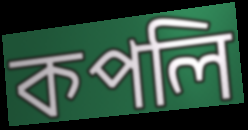
কপলি